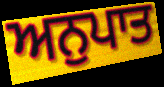
ਅਨੁਪਾਤ